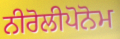
ਨੀਰੋਲੀਪੋਨੋਮ